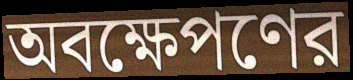
অবক্ষেপণের